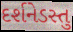
દર્શનેડસ્તુ